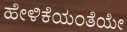
ಹೇಳಿಕೆಯಂತೆಯೇ